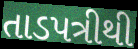
તાડપત્રીથી